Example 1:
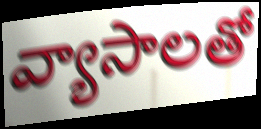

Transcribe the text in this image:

వ్యాసాలతో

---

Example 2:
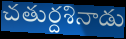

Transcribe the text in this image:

చతుర్దశినాడు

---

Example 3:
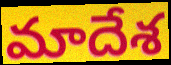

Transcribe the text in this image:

మాదేశ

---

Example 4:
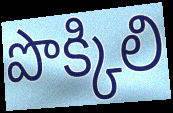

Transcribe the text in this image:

పొక్కిలి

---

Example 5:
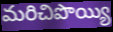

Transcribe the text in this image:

మరిచిపొయ్యి